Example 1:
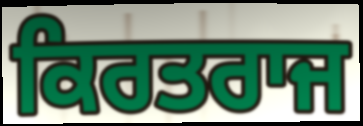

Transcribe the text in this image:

ਕਿਰਤਰਾਜ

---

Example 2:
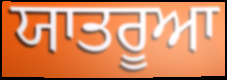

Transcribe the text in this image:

ਯਾਤਰੂਆ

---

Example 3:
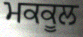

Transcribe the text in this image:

ਮਕਕੂਲ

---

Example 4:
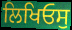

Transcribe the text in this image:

ਲਿਖਿਓਸੁ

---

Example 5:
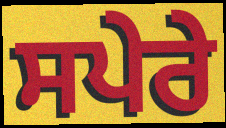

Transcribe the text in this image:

ਸਪੇਰੇ